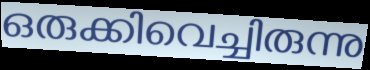
ഒരുക്കിവെച്ചിരുന്നു